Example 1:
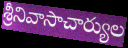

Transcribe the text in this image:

శ్రీనివాసాచార్యుల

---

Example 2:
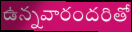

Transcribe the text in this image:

ఉన్నవారందరితో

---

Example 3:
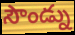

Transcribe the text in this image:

సౌండ్ను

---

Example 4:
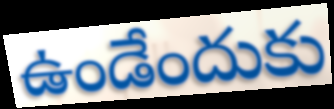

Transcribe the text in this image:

ఉండేందుకు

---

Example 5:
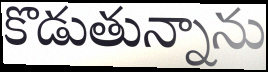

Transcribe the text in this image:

కొడుతున్నాను